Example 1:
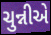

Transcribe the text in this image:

ચુન્નીએ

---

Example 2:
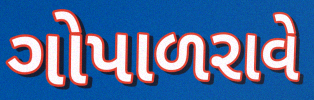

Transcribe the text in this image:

ગોપાળરાવે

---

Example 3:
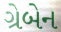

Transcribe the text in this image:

ગ્રેબેન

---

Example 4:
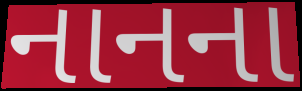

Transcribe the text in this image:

નાનના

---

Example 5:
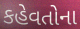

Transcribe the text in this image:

કહેવતોના